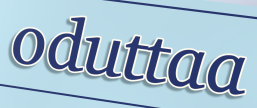
oduttaa